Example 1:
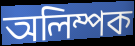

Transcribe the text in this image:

অলিম্পক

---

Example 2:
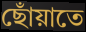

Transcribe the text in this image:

ছোঁয়াতে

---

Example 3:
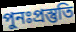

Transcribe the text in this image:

পুনঃপ্রস্তুতি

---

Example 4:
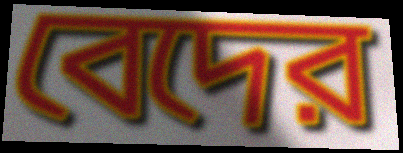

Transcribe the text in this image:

বেদের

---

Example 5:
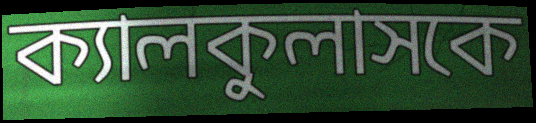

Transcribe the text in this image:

ক্যালকুলাসকে